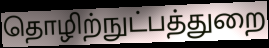
தொழிற்நுட்பத்துறை